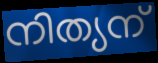
നിത്യന്